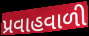
પ્રવાહવાળી